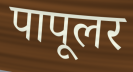
पापूलर